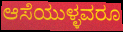
ಆಸೆಯುಳ್ಳವರೂ